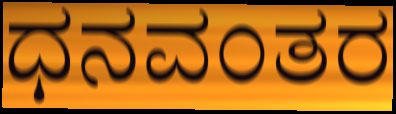
ಧನವಂತರ